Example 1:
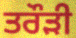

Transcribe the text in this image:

ਤਰੌੜੀ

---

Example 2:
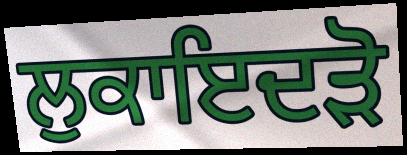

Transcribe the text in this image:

ਲੁਕਾਇਦੜੋ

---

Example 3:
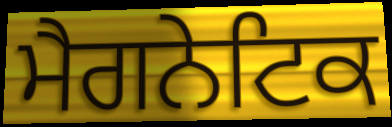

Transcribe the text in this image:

ਮੈਗਨੇਟਿਕ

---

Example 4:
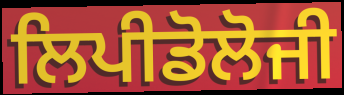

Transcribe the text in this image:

ਲਿਪੀਡੋਲੋਜੀ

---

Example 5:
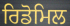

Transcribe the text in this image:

ਰਿਡੋਮਿਲ